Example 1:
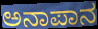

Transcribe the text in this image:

ಅನಾಪಾನ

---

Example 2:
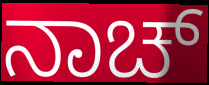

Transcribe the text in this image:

ನಾಚ್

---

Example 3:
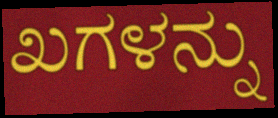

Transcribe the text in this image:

ಖಗಳನ್ನು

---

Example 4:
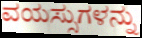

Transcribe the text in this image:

ವಯಸ್ಸುಗಳನ್ನು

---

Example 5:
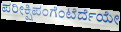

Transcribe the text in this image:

ಪರೀಕ್ಷಿಪಂಗೆಂಟೆರ್ದೆಯೇ